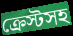
ক্রেস্টসহ